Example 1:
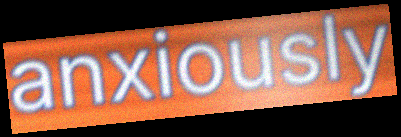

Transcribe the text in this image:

anxiously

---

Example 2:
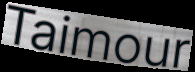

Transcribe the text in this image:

Taimour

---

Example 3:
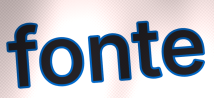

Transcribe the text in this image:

fonte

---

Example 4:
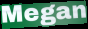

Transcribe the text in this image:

Megan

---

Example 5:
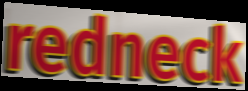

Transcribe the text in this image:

redneck